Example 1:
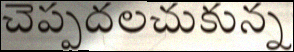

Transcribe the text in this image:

చెప్పదలచుకున్న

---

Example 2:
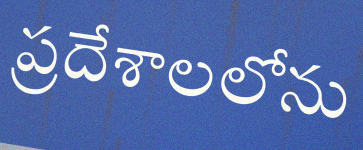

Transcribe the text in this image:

ప్రదేశాలలోను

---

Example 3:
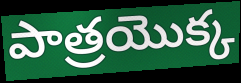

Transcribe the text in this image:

పాత్రయొక్క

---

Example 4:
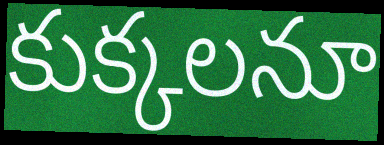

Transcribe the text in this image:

కుక్కలనూ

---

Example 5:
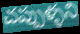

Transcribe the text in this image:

చప్పుళ్ళని